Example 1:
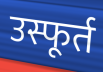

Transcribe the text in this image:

उस्फूर्त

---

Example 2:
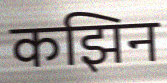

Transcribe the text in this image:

कझिन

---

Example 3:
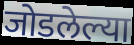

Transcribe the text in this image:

जोडलेल्या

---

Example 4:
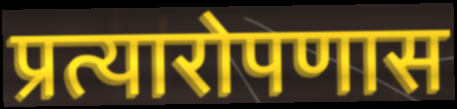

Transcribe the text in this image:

प्रत्यारोपणास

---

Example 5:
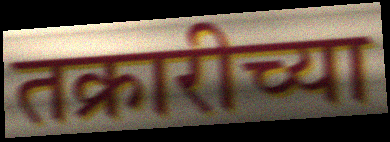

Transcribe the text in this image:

तक्रारीच्या